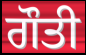
ਗੌਤੀ